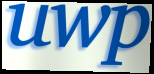
uwp